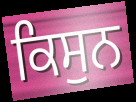
ਕਿਸੁਨ